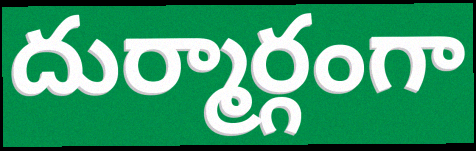
దుర్మార్గంగా